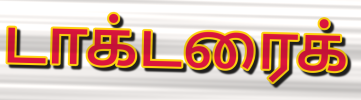
டாக்டரைக்